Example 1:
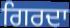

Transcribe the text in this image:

ਗਿਰਦਾ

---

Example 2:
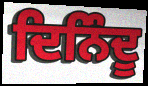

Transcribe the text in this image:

ਦਿਨਿੰਦੂ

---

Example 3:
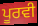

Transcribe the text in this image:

ਪੂਰਵੀ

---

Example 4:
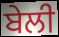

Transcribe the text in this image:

ਬੇਲੀ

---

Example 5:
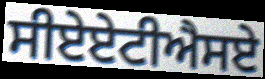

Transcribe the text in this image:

ਸੀਏਏਟੀਐਸਏ